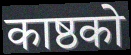
काष्ठको